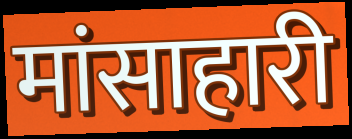
मांसाहारी